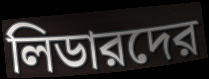
লিডারদের